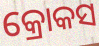
କ୍ରୋକସ